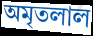
অমৃতলাল